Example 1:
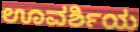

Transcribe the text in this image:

ಊವರ್ಶಿಯ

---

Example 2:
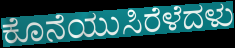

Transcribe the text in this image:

ಕೊನೆಯುಸಿರೆಳೆದಳು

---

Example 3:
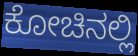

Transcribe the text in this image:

ಕೋಚಿನಲ್ಲಿ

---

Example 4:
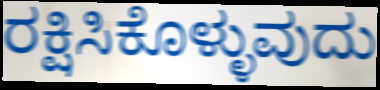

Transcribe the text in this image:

ರಕ್ಷಿಸಿಕೊಳ್ಳುವುದು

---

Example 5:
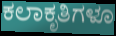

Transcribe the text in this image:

ಕಲಾಕೃತಿಗಳೂ